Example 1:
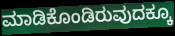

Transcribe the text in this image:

ಮಾಡಿಕೊಂಡಿರುವುದಕ್ಕೂ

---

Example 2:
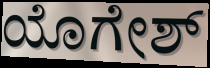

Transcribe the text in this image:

ಯೊಗೇಶ್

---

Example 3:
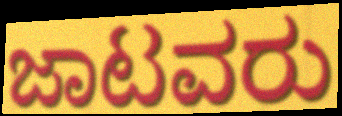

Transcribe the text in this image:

ಜಾಟವರು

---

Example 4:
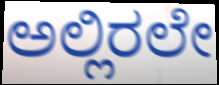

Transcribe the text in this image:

ಅಲ್ಲಿರಲೇ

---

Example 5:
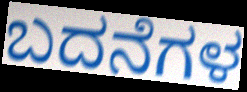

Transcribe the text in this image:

ಬದನೆಗಳ